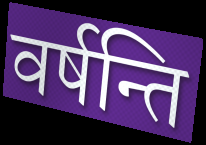
वर्षन्ति